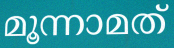
മൂന്നാമത്